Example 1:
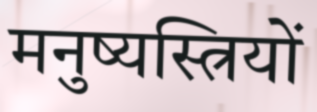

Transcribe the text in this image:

मनुष्यस्त्रियों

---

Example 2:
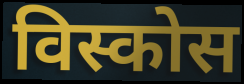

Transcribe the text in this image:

विस्कोस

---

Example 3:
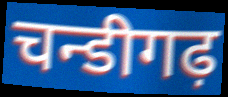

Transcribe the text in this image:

चन्डीगढ़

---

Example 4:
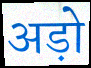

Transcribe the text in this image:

अड़ो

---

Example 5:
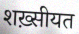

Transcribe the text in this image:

शख़्सीयत